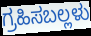
ಗ್ರಹಿಸಬಲ್ಲಳು